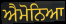
ਐਮੋਨਿਆ